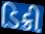
ડિક્રી